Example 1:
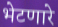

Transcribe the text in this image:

भेटणारे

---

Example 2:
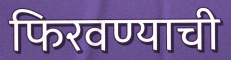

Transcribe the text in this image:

फिरवण्याची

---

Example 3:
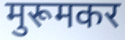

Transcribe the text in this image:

मुरूमकर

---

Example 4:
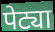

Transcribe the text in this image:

पेट्या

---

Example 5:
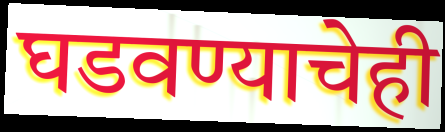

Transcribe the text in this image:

घडवण्याचेही